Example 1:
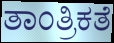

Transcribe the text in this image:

ತಾಂತ್ರಿಕತೆ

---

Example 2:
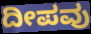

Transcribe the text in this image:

ದೀಪವು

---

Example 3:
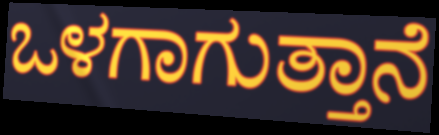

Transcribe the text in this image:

ಒಳಗಾಗುತ್ತಾನೆ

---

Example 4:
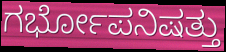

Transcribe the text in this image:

ಗರ್ಭೋಪನಿಷತ್ತು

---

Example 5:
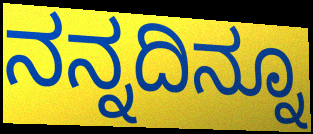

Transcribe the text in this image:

ನನ್ನದಿನ್ನೂ